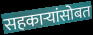
सहकाऱ्यांसोबत